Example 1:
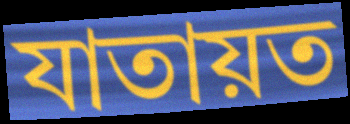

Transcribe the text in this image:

যাতায়ত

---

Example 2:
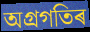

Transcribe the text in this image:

অগ্ৰগতিৰ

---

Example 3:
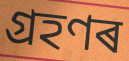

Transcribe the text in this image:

গ্ৰহণৰ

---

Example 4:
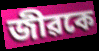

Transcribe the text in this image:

জীৱকে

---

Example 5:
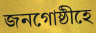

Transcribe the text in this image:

জনগোষ্ঠীহে